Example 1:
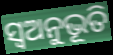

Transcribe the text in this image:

ସ୍ୱଅନୁଭୂତି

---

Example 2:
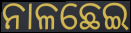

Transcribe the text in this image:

ନାଳଛେଇ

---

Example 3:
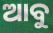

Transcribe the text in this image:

ଆବୁ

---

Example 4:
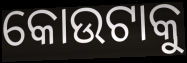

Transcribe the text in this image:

କୋଉଟାକୁ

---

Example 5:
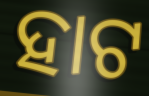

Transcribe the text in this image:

ହାଟ